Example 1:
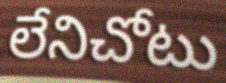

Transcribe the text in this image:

లేనిచోటు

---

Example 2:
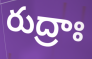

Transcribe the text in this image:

రుద్రాః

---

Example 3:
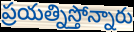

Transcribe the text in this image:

ప్రయత్నిస్తోన్నారు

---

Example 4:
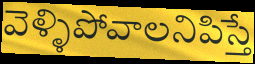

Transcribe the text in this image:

వెళ్ళిపోవాలనిపిస్తే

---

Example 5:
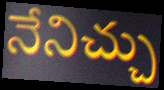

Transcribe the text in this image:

నేనిచ్చు